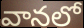
వానలో